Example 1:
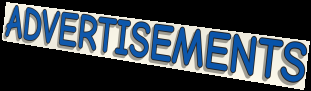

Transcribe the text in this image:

ADVERTISEMENTS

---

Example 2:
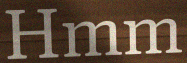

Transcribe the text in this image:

Hmm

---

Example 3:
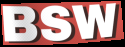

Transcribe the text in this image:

BSW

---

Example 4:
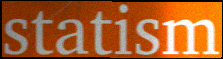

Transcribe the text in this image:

statism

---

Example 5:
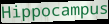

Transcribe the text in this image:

Hippocampus